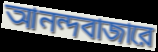
আনন্দবাজারে